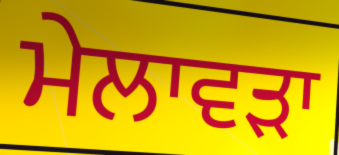
ਮੇਲਾਵੜਾ